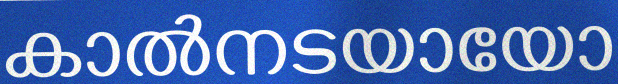
കാൽനടയായോ